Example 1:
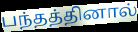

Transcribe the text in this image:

பந்தத்தினால்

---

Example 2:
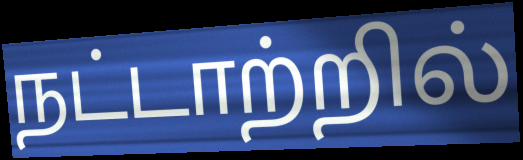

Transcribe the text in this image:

நட்டாற்றில்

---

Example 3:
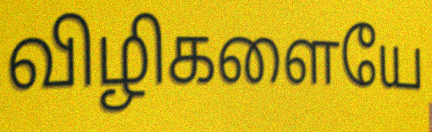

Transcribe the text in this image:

விழிகளையே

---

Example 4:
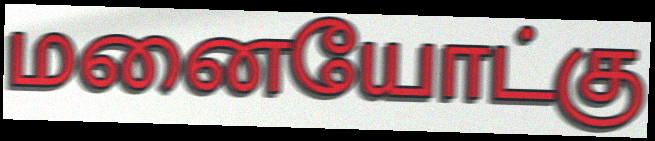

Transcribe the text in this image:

மனையோட்கு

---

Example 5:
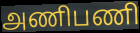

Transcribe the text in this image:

அணிபணி